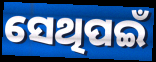
ସେଥିପଇଁ